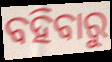
ବହିବାରୁ